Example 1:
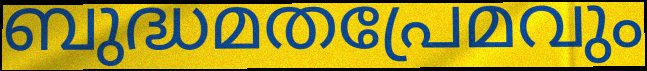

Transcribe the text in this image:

ബുദ്ധമതപ്രേമവും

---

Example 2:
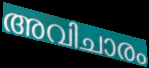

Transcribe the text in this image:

അവിചാരം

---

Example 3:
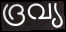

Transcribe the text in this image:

ദ്രവ്യ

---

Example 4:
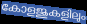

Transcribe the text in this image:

കോളജുകളിലും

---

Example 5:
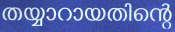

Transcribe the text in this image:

തയ്യാറായതിന്റെ